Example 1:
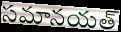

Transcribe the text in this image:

సమానయత్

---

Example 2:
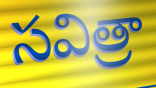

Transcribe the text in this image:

సవిత్రా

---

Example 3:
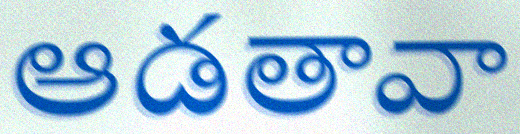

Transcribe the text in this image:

ఆడతావా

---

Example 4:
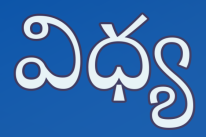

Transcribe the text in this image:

విధ్య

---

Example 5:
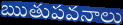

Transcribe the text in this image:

ఋతుపవనాలు